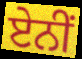
ਏਨੀਂ